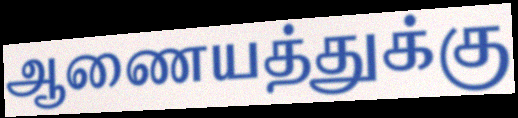
ஆணையத்துக்கு